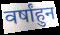
वर्षांहुन